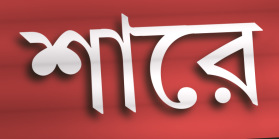
শারে